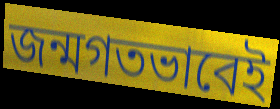
জন্মগতভাবেই